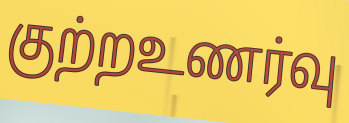
குற்றஉணர்வு